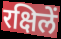
रक्षिलें